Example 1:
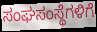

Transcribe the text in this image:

ಸಂಘಸಂಸ್ಥೆಗಳಿಗೆ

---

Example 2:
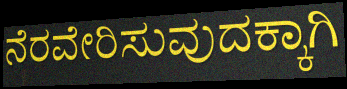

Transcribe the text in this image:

ನೆರವೇರಿಸುವುದಕ್ಕಾಗಿ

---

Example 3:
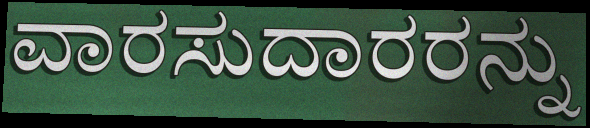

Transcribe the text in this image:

ವಾರಸುದಾರರನ್ನು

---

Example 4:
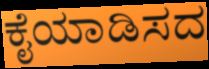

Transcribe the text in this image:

ಕೈಯಾಡಿಸದ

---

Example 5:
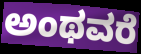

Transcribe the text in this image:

ಅಂಥವರೆ